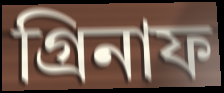
গ্রিনাফ